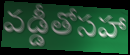
వడ్డీతోసహా